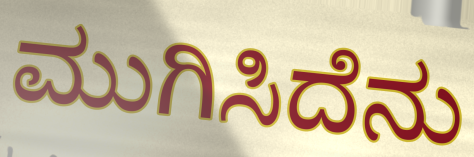
ಮುಗಿಸಿದೆನು